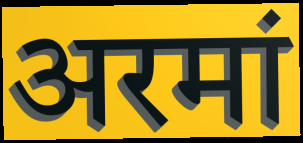
अरमां